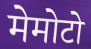
मेमोटो